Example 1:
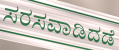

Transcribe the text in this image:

ಸರಸವಾಡಿದಡೆ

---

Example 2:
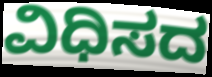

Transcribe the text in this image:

ವಿಧಿಸದ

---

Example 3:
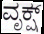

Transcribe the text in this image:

ವೃಕ್ಷ್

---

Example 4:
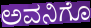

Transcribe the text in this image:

ಅವನಿಗೊ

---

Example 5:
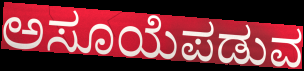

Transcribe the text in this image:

ಅಸೂಯೆಪಡುವ